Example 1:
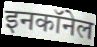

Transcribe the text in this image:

इनकॉनेल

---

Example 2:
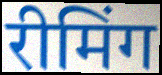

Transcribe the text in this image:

रीमिंग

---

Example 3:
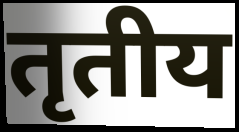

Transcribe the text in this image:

तृतीय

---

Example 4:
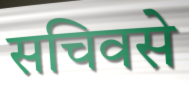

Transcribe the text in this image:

सचिवसे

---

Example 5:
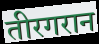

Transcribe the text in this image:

तीरगरान